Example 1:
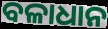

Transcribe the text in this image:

ବଳାଧାନ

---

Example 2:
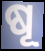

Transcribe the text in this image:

ଷୂ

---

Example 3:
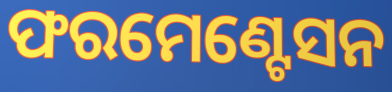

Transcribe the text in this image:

ଫରମେଣ୍ଟେସନ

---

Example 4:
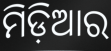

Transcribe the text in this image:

ମିଡ଼ିଆର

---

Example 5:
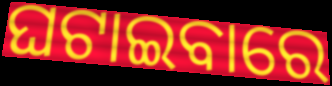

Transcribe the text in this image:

ଘଟାଇବାରେ